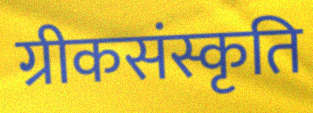
ग्रीकसंस्कृति